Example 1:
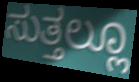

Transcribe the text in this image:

ಸುತ್ತಲ್ಲೂ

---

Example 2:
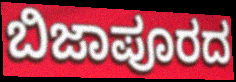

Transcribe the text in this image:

ಬಿಜಾಪೂರದ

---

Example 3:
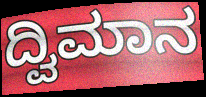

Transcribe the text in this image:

ದ್ವಿಮಾನ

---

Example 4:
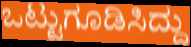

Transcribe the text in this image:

ಒಟ್ಟುಗೂಡಿಸಿದ್ದು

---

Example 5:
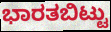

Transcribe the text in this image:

ಭಾರತಬಿಟ್ಟು